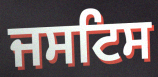
ਜਸਟਿਸ